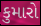
કુમારો